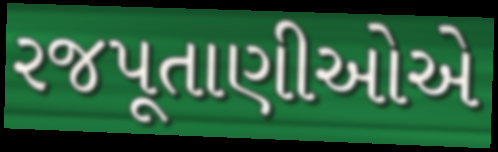
રજપૂતાણીઓએ